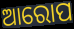
ଆରୋପ